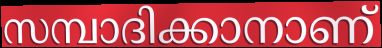
സമ്പാദിക്കാനാണ്